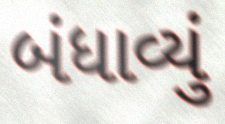
બંધાવ્યું